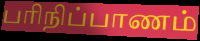
பரிநிப்பாணம்